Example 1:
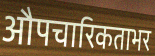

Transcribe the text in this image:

औपचारिकताभर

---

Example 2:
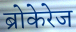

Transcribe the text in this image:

ब्रोकेरेज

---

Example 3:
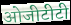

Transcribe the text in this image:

ओजीटीटी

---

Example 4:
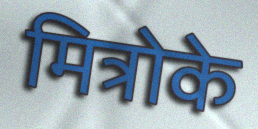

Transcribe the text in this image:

मित्रोके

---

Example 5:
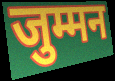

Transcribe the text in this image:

जुम्मन